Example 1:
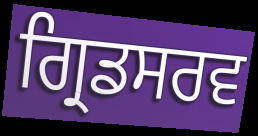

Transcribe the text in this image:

ਗ੍ਰਿਡਸਰਵ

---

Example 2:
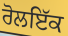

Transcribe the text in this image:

ਰੋਲਇੱਕ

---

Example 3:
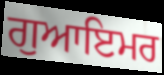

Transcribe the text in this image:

ਗੁਆਇਮਰ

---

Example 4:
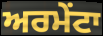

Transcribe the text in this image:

ਅਰਮੇਂਟਾ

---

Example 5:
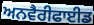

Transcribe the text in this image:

ਅਨਵੈਰੀਫਾਈਡ